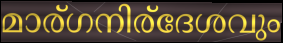
മാര്ഗനിര്ദേശവും